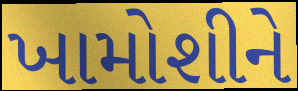
ખામોશીને